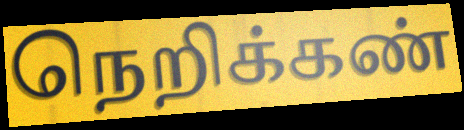
நெறிக்கண்